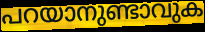
പറയാനുണ്ടാവുക